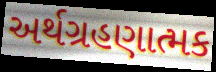
અર્થગ્રહણાત્મક